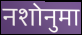
नशोनुमा